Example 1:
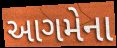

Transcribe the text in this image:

આગમેના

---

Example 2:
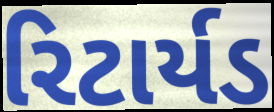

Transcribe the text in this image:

રિટાર્યડ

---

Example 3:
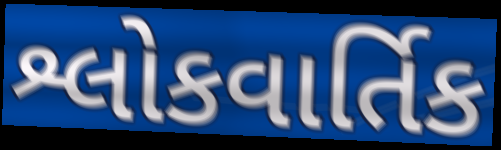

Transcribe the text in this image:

શ્લોકવાર્તિક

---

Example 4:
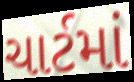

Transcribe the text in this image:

ચાર્ટમાં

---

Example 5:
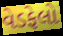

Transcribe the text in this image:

વેડફેલો